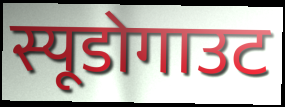
स्यूडोगाउट